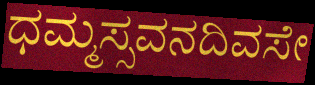
ಧಮ್ಮಸ್ಸವನದಿವಸೇ